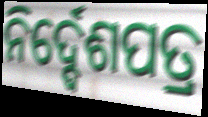
ନିର୍ଦ୍ଦେଶପତ୍ର